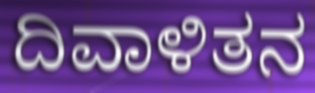
ದಿವಾಳಿತನ